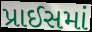
પ્રાઈસમાં